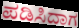
ಪಡಿಸಿದಾಗ